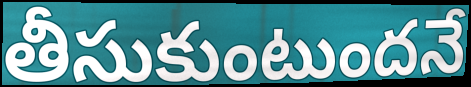
తీసుకుంటుందనే